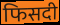
फिसदी